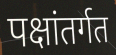
पक्षांतर्गत